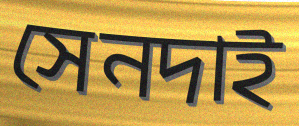
সেনদাই